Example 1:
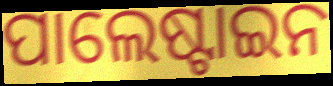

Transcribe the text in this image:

ପାଲେଷ୍ଟାଇନ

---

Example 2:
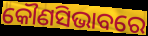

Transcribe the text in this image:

କୌଣସିଭାବରେ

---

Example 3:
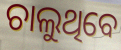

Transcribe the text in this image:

ଚାଲୁଥିବେ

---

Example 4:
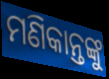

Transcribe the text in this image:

ମଣିକାନ୍ତଙ୍କୁ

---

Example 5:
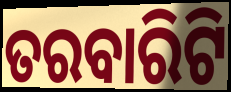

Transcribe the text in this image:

ତରବାରିଟି